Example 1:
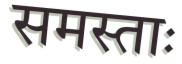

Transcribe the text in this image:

समस्ताः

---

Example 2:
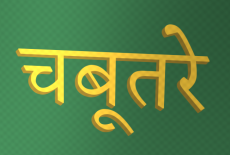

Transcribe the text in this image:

चबूतरे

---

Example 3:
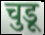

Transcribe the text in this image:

चुडू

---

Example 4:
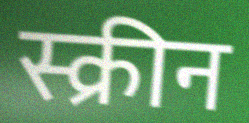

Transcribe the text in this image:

स्क्रीन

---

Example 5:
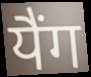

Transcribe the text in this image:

यैंग